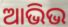
ଆଭିଭ